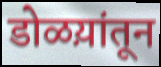
डोळय़ांतून